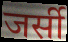
जर्सी